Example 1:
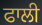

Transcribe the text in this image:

ਫਾਲੀ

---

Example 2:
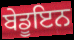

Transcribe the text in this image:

ਬੇਡੂਇਨ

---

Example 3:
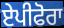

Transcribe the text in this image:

ਏਪੀਫੋਰਾ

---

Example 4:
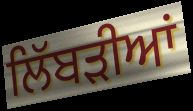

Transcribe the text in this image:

ਲਿੱਬੜੀਆਂ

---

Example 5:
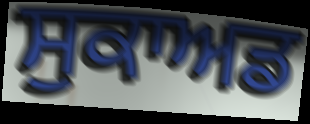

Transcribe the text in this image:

ਸੁਕਾਅਡ